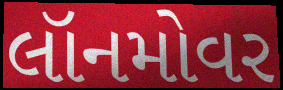
લૉનમોવર